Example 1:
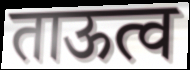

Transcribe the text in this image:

ताऊत्व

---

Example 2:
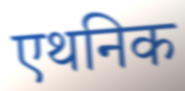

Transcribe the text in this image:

एथनिक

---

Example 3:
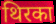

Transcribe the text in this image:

थिरका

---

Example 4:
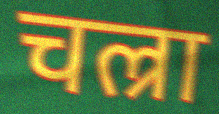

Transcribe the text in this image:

चल्रा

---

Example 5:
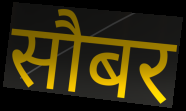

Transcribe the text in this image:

सौबर